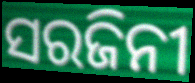
ସରଜିନୀ